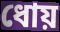
ধোয়